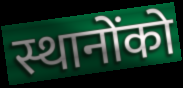
स्थानोंको